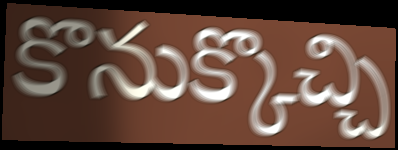
కొనుక్కొచ్చి